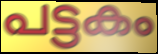
പട്ടകം